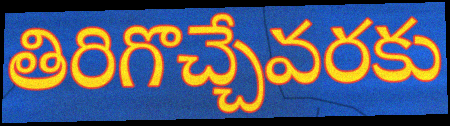
తిరిగొచ్చేవరకు